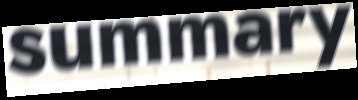
summary